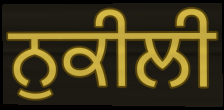
ਨੁਕੀਲੀ